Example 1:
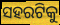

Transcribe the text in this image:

ସହରଟିକୁ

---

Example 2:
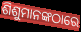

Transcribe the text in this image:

ଶିଶୁମାନଙ୍କଠାରେ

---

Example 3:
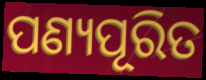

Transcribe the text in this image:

ପଣ୍ୟପୂରିତ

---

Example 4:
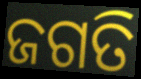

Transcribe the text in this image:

ଜଗତି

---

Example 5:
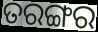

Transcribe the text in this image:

ତରଙ୍ଗର